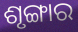
ଶୃଙ୍ଗାର